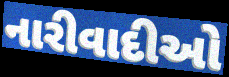
નારીવાદીઓ